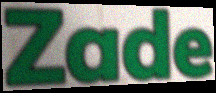
Zade